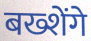
बख्शेंगे